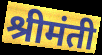
श्रीमंती